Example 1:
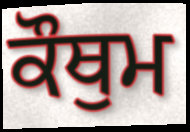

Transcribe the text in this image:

ਕੌਥੁਮ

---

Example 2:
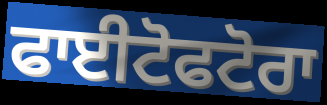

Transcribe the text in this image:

ਫਾਈਟੋਫਟੋਰਾ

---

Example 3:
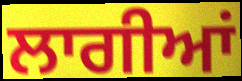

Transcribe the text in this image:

ਲਾਗੀਆਂ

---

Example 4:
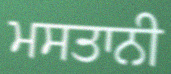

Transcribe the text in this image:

ਮਸਤਾਨੀ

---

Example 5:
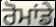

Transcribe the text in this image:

ਰੋਮਾਂਡੇ